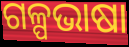
ଗଳ୍ପଭାଷା